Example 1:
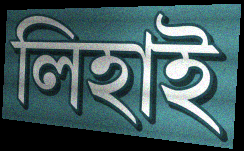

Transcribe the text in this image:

লিহাই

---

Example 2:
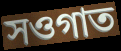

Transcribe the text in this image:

সওগাত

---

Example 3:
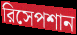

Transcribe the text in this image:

রিসেপশান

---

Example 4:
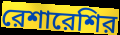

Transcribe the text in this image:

রেশারেশির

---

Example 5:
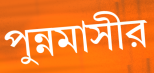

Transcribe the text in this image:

পুন্নমাসীর